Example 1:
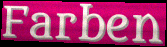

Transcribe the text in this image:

Farben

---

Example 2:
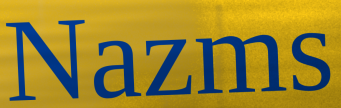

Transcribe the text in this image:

Nazms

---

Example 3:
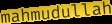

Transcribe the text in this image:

mahmudullah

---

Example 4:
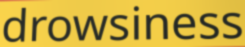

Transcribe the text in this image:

drowsiness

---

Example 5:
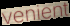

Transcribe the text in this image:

venient